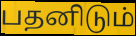
பதனிடும்